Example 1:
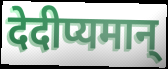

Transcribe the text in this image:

देदीप्यमान्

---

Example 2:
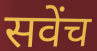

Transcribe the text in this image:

सवेंच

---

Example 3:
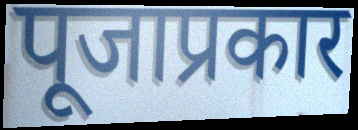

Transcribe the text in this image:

पूजाप्रकार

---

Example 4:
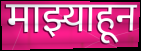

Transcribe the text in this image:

माझ्याहून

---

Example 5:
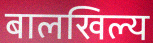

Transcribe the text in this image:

बालखिल्य